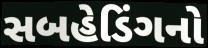
સબહેડિંગનો